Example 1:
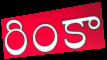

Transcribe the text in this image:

రింకా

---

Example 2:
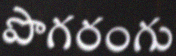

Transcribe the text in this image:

పొగరంగు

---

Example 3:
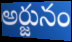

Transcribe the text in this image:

అర్జునం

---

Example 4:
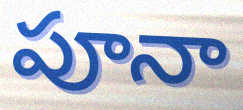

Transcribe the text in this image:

పూనా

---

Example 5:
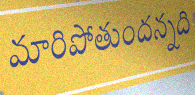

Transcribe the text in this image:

మారిపోతుందన్నది